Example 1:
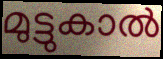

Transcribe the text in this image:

മുട്ടുകാൽ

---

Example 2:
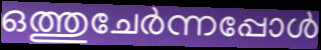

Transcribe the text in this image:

ഒത്തുചേർന്നപ്പോൾ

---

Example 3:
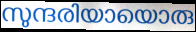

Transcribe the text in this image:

സുന്ദരിയായൊരു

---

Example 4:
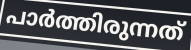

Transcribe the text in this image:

പാർത്തിരുന്നത്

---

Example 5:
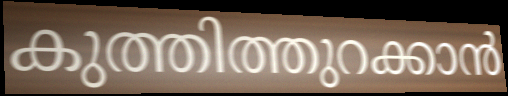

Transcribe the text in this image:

കുത്തിത്തുറക്കാൻ